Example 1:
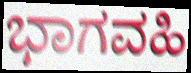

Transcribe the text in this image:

ಭಾಗವಹಿ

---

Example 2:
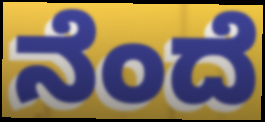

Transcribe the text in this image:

ನೆಂದೆ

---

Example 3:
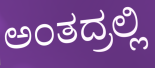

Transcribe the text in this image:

ಅಂತದ್ರಲ್ಲಿ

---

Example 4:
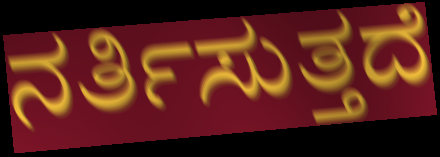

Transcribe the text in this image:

ನರ್ತಿಸುತ್ತದೆ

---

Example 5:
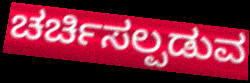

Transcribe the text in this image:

ಚರ್ಚಿಸಲ್ಪಡುವ